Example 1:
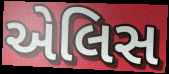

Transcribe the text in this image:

એલિસ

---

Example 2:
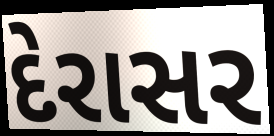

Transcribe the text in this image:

દેરાસર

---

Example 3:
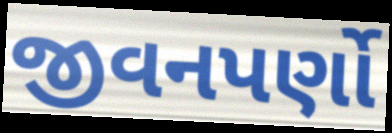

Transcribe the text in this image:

જીવનપર્ણો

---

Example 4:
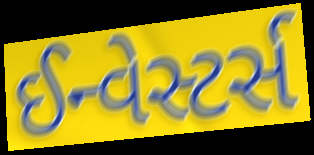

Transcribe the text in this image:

ઈન્વેસ્ટર્સ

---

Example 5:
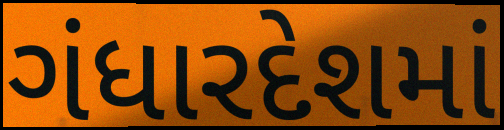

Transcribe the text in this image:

ગંધારદેશમાં